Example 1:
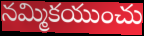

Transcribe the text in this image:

నమ్మికయుంచు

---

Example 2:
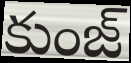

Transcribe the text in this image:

కుంజ్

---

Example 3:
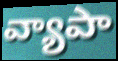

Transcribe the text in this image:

వ్యాపా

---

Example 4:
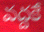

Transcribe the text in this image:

వద్దకే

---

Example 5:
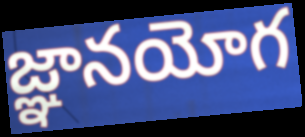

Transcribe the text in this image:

జ్ఞానయోగ